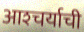
आश्‍चर्याची